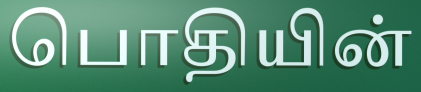
பொதியின்